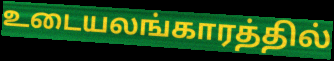
உடையலங்காரத்தில்